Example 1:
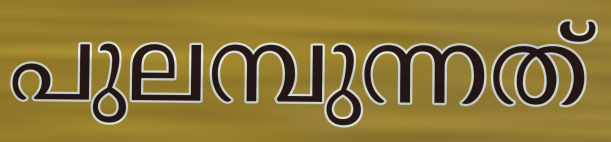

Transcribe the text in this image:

പുലമ്പുന്നത്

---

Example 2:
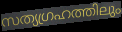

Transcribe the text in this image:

സത്യഗ്രഹത്തിലും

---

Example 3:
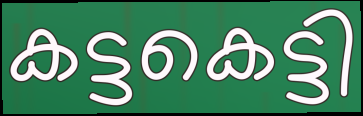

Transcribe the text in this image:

കട്ടകെട്ടി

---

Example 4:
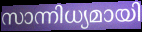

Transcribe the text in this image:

സാന്നിധ്യമായി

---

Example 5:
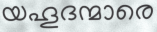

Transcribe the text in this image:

യഹൂദന്മാരെ